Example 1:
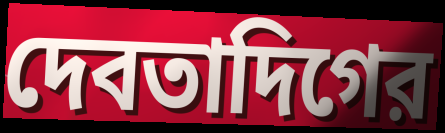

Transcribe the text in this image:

দেবতাদিগের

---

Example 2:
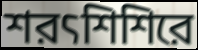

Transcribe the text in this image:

শরৎশিশিরে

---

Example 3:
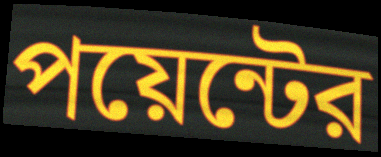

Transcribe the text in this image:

পয়েন্টের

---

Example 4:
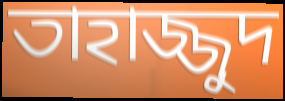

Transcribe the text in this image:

তাহাজ্জুদ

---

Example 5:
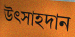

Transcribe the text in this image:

উৎসাহদান